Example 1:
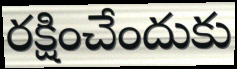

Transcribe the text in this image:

రక్షించేందుకు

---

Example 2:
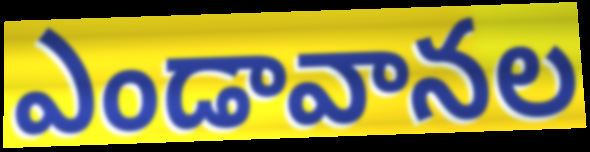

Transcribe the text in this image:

ఎండావానల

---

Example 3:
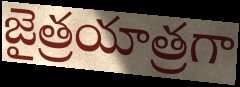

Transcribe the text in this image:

జైత్రయాత్రగా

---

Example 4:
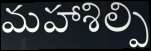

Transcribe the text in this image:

మహాశిల్పి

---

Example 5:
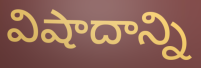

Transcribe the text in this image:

విషాదాన్ని